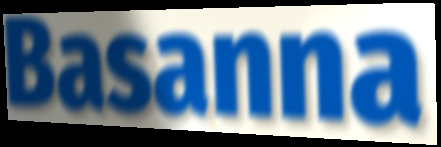
Basanna